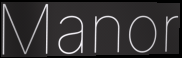
Manor